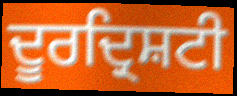
ਦੂਰਦ੍ਰਿਸ਼ਟੀ